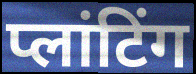
प्लांटिंग